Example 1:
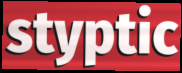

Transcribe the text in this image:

styptic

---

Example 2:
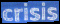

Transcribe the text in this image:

crisis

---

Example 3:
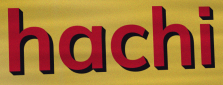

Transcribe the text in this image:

hachi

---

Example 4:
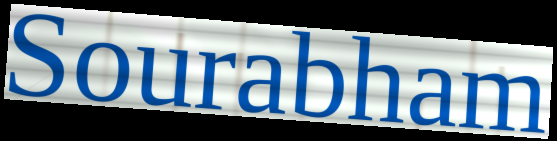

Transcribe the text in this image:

Sourabham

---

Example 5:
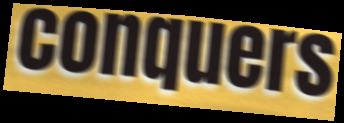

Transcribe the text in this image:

conquers